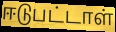
ஈடுபட்டாள்